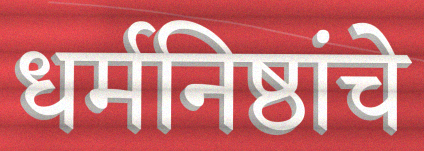
धर्मनिष्ठांचे